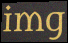
img